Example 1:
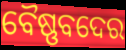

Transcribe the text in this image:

ବୈଷ୍ଣବଦେର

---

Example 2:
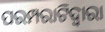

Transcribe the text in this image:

ପରମ୍ପରାଟିଦ୍ୱାରା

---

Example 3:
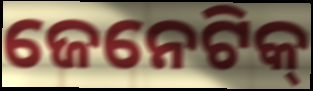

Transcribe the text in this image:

ଜେନେଟିକ୍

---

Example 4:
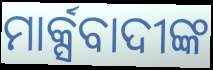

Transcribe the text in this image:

ମାର୍କ୍ସବାଦୀଙ୍କ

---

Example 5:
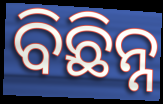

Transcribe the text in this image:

ବିଛିନ୍ନ